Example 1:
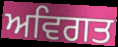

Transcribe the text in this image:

ਅਵਿਗਤ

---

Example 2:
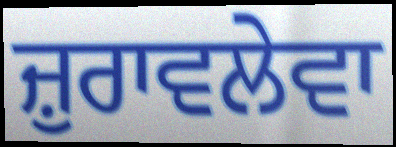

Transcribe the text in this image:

ਜ਼ੁਰਾਵਲੇਵਾ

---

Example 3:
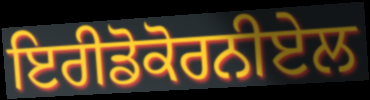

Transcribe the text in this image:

ਇਰੀਡੋਕੋਰਨੀਏਲ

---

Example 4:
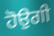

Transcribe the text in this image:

ਹੋਉਗੀ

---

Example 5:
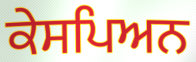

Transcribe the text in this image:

ਕੇਸਪਿਅਨ